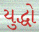
યુદ્ધો